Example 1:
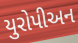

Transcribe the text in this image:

યુરોપીઅન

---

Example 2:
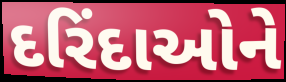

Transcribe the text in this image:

દરિંદાઓને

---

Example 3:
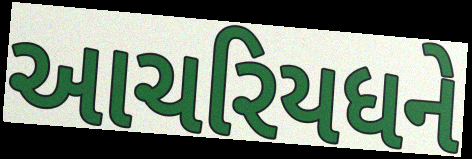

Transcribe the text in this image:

આચરિયધને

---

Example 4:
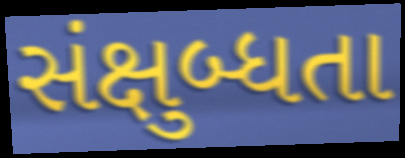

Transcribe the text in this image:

સંક્ષુબ્ધતા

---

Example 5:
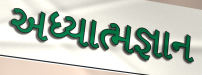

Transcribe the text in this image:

અધ્યાત્મજ્ઞાન